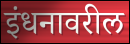
इंधनावरील